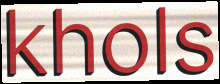
khols